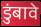
डुंबावे